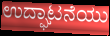
ಉದ್ಘಾಟನೆಯು